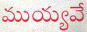
ముయ్యవే